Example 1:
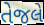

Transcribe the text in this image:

તેજલે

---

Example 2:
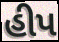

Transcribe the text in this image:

હીપ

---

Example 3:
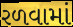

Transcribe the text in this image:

રળવામાં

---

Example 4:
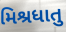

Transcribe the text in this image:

મિશ્રધાતુ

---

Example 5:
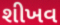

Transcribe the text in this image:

શીખવ